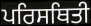
ਪਰਿਸਥਿਤੀ